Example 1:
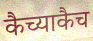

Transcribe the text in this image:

कैच्याकैच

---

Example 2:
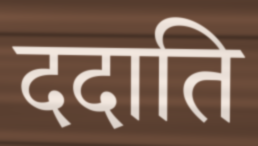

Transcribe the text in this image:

ददाति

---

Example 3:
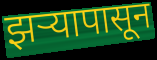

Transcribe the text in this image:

झऱ्यापासून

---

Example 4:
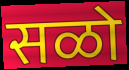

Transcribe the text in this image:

सळो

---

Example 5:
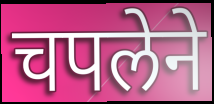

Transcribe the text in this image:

चपलेने